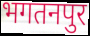
भगतनपुर